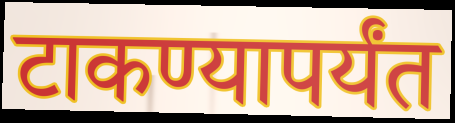
टाकण्यापर्यंत